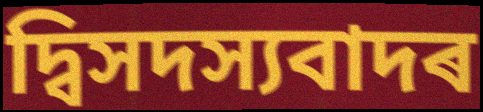
দ্বিসদস্যবাদৰ